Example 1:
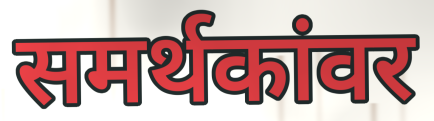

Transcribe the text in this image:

समर्थकांवर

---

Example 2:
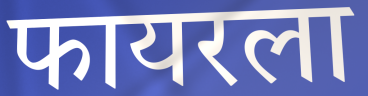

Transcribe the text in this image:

फायरला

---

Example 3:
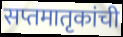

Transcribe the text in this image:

सप्तमातृकांची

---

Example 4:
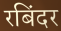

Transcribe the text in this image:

रबिंदर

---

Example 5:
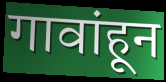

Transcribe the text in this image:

गावांहून